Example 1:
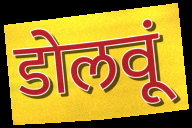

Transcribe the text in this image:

डोलवूं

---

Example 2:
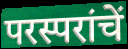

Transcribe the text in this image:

परस्परांचें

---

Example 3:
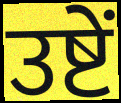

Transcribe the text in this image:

उष्टें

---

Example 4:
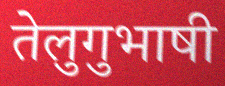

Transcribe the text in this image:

तेलुगुभाषी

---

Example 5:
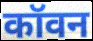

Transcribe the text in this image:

कॉवन